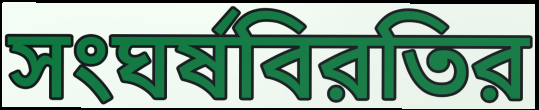
সংঘর্ষবিরতির